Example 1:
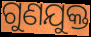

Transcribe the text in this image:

ଗୁଣଯୁକ୍ତ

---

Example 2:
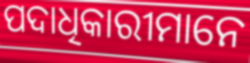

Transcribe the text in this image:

ପଦାଧିକାରୀମାନେ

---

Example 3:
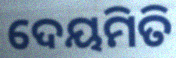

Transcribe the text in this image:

ଦେୟମିତି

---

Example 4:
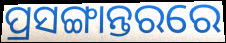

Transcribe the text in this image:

ପ୍ରସଙ୍ଗାନ୍ତରରେ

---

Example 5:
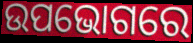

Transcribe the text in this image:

ଉପଭୋଗରେ